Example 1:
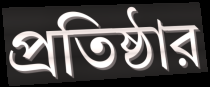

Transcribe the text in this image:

প্রতিষ্ঠার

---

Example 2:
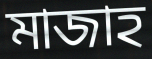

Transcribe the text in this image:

মাজাহ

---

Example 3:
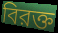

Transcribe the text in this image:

বিরক্ত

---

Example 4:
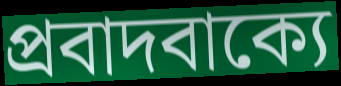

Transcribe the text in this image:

প্রবাদবাক্যে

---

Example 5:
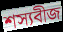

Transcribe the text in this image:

শস্যবীজ